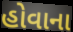
હોવાના